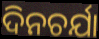
ଦିନଚର୍ଯା